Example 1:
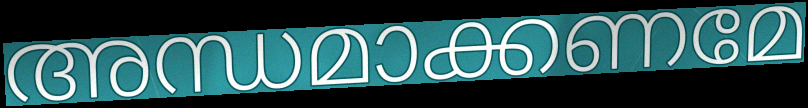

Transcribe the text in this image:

അന്ധമാക്കണമേ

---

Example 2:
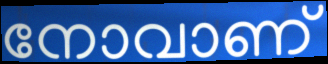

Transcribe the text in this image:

നോവാണ്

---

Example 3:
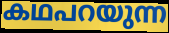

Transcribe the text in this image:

കഥപറയുന്ന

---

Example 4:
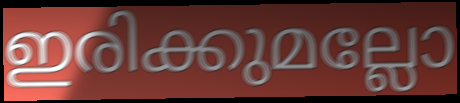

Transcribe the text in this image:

ഇരിക്കുമല്ലോ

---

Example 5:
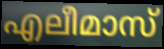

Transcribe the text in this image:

എലീമാസ്